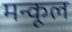
मन्कूल